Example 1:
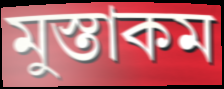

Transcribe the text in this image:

মুস্তাকম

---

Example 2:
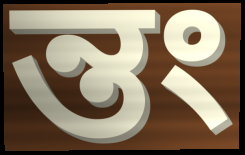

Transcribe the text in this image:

ন্তং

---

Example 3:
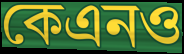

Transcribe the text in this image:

কেএনও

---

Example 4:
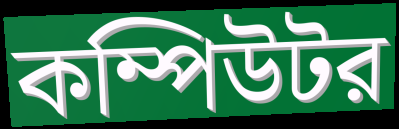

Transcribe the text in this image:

কম্পিউটর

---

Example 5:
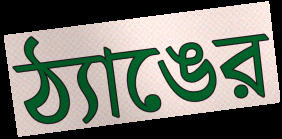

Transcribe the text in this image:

ঠ্যাঙের